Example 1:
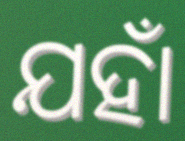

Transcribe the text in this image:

ଯହାଁ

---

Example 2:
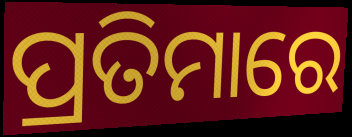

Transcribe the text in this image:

ପ୍ରତିମାରେ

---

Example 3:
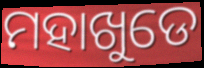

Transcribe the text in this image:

ମହାଖୁଡେ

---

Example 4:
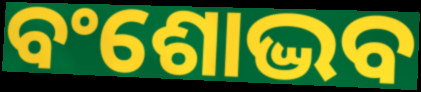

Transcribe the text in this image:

ବଂଶୋଦ୍ଭବ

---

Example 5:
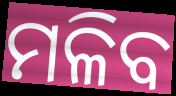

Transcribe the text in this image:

ମଳିବ